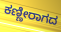
ಕಣ್ಣೀರಾಗದ